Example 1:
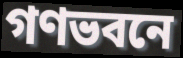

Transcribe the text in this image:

গণভবনে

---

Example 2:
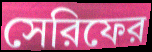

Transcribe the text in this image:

সেরিফের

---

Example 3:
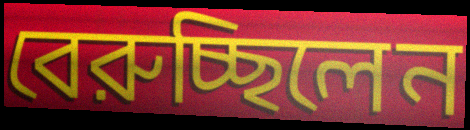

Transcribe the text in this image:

বেরুচ্ছিলেন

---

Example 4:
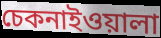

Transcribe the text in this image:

চেকনাইওয়ালা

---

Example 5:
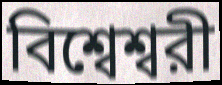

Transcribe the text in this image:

বিশ্বেশ্বরী